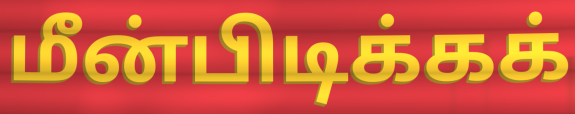
மீன்பிடிக்கக்